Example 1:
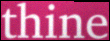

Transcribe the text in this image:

thine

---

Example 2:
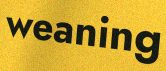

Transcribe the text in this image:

weaning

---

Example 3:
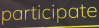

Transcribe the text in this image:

participate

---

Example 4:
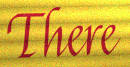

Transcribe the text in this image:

There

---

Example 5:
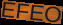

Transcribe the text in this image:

EFEO